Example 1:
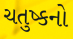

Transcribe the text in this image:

ચતુષ્કનો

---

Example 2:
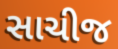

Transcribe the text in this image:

સાચીજ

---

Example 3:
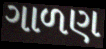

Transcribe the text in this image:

ગાળણ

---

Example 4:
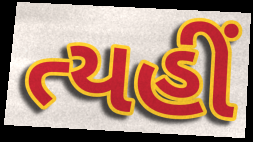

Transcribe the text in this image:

ત્યહીં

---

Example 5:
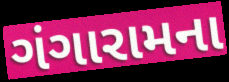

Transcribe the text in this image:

ગંગારામના